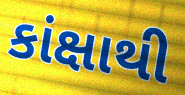
કાંક્ષાથી